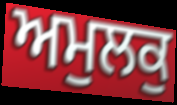
ਅਮੁਲਕੁ